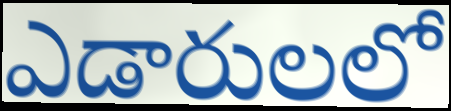
ఎడారులలో